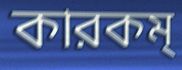
কারকম্